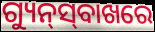
ଗ୍ୟୁନ୍‍ସ୍‍ବାଖରେ